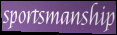
sportsmanship